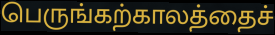
பெருங்கற்காலத்தைச்